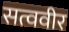
सत्ववीर